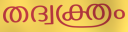
തദ്വക്ത്രം